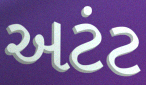
અટંટ